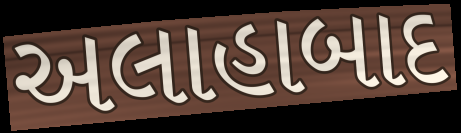
અલાહાબાદ